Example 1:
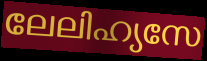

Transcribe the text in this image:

ലേലിഹ്യസേ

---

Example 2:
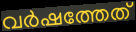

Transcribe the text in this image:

വർഷത്തേത്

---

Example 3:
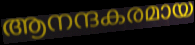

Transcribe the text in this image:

ആനന്ദകരമായ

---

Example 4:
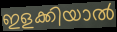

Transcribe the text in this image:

ഇളക്കിയാൽ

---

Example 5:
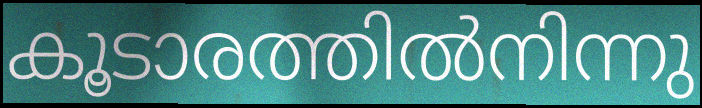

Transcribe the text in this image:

കൂടാരത്തിൽനിന്നു